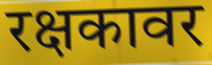
रक्षकावर